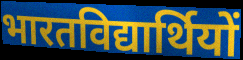
भारतविद्यार्थियों